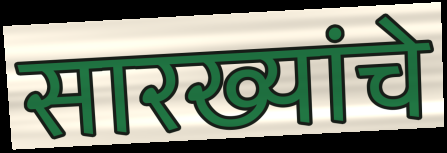
सारख्यांचे